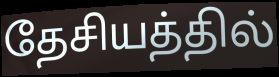
தேசியத்தில்